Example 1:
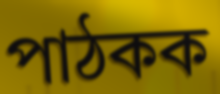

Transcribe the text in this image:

পাঠকক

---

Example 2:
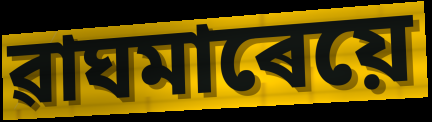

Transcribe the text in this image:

ৱাঘমাৰেয়ে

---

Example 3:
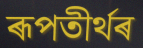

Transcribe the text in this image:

ৰূপতীৰ্থৰ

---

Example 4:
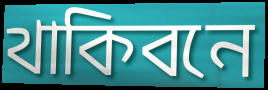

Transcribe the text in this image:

থাকিবনে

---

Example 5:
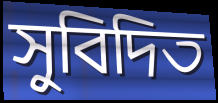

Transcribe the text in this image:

সুবিদিত